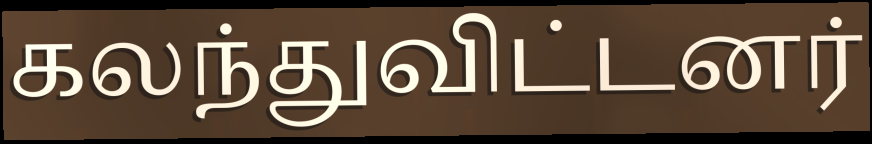
கலந்துவிட்டனர்